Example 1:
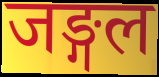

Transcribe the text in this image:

जङ्गल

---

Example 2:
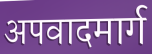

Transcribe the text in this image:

अपवादमार्ग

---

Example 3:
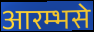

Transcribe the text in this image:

आरम्भसे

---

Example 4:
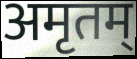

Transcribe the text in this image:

अमृतम्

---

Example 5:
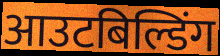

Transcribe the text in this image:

आउटबिल्डिंग